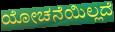
ಯೋಚನೆಯಿಲ್ಲದೆ